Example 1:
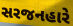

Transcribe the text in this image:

સરજનહારે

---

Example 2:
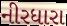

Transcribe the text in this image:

નીરધારા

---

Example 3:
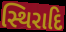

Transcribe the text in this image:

સ્થિરાદિ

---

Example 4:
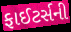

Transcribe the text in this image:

ફાઈટર્સની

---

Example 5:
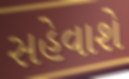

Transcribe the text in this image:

સહેવાશે